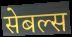
सेबल्स